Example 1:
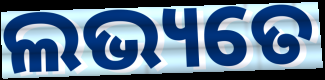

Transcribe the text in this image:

ଲଭ୍ୟତେ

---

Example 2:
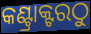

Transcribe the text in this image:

କଣ୍ଟ୍ରାକ୍ଟରଠୁ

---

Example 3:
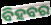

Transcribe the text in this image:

ବିହବର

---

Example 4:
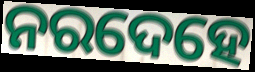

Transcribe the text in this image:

ନରଦେହେ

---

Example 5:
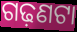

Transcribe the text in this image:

ଗଢ଼ଣଟା